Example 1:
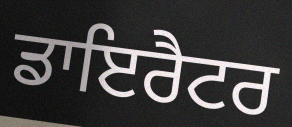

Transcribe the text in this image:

ਡਾਇਰੈਟਰ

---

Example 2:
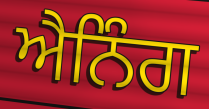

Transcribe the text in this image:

ਐਨਿੰਗ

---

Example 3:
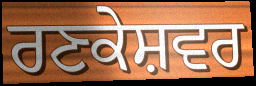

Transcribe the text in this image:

ਰਣਕੇਸ਼ਵਰ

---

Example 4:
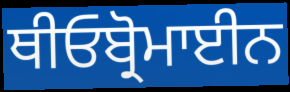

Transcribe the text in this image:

ਥੀਓਬ੍ਰੋਮਾਈਨ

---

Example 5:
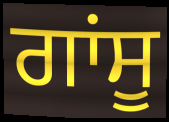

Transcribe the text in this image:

ਗਾਂਸੂ